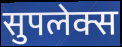
सुपलेक्स